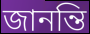
জানন্তি